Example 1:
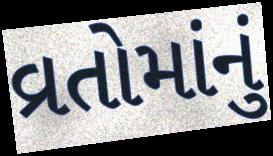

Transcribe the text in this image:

વ્રતોમાંનું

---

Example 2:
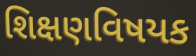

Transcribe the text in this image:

શિક્ષણવિષયક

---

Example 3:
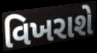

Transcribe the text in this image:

વિખરાશે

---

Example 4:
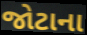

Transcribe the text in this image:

જોટાના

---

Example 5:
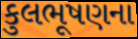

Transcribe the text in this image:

કુલભૂષણના